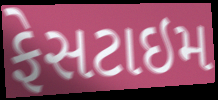
ફેસટાઇમ